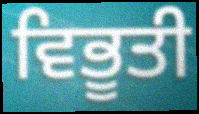
ਵਿਭੂਤੀ